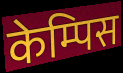
केम्पिस